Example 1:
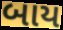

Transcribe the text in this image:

બાય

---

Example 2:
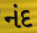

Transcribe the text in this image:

નંદ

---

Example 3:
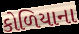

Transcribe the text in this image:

કોળિયાના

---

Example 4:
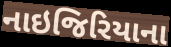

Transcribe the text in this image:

નાઇજિરિયાના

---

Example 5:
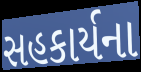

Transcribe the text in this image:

સહકાર્યના